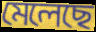
মেলেছে